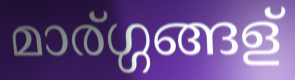
മാര്ഗ്ഗങ്ങള്